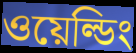
ওয়েল্ডিং